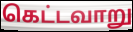
கெட்டவாறு